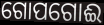
ଗୋପଗୋଈ